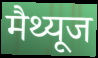
मैथ्यूज